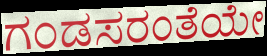
ಗಂಡಸರಂತೆಯೇ